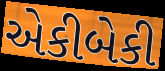
એકીબેકી